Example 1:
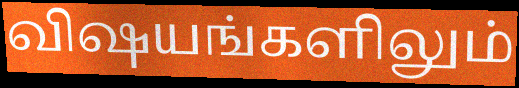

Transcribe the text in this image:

விஷயங்களிலும்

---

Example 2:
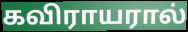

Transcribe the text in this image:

கவிராயரால்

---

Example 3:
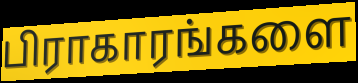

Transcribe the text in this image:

பிராகாரங்களை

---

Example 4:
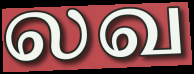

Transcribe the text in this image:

லவ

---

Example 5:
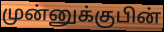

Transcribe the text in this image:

முன்னுக்குபின்